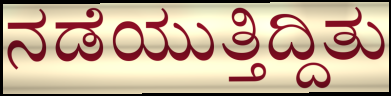
ನಡೆಯುತ್ತಿದ್ದಿತು